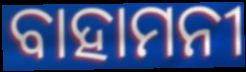
ବାହାମନୀ